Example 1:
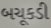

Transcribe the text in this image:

બચૂકડી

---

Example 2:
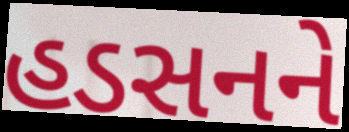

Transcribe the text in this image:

હડસનને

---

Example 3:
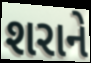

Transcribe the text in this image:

શરાને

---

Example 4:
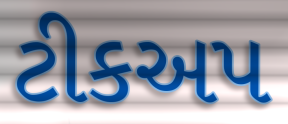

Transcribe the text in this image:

ટીકઅપ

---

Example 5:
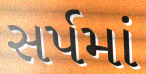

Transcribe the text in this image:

સર્પમાં